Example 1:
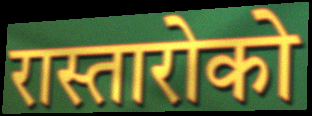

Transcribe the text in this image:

रास्तारोको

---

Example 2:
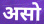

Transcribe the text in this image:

असो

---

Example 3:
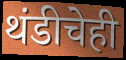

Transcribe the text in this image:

थंडीचेही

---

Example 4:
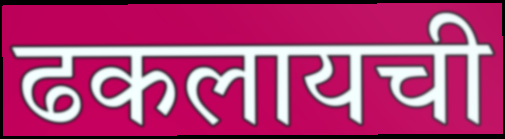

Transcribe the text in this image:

ढकलायची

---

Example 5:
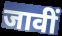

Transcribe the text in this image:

जावीं